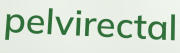
pelvirectal